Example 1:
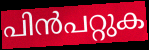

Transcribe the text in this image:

പിൻപറ്റുക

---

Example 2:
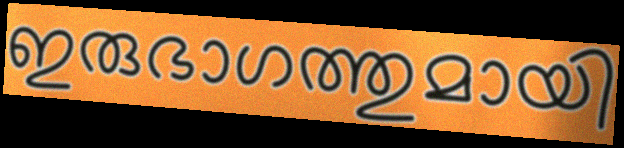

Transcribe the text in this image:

ഇരുഭാഗത്തുമായി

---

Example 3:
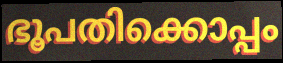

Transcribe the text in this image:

ഭൂപതിക്കൊപ്പം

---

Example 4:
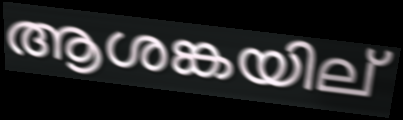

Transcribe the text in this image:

ആശങ്കയില്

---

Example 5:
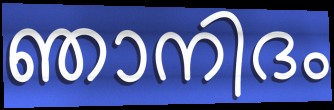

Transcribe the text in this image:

ഞാനിദം